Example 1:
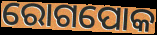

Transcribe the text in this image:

ରୋଗପୋକ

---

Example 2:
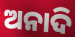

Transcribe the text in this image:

ଅନାଦି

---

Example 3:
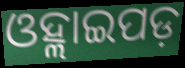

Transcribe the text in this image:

ଓହ୍ଲାଇପଡ଼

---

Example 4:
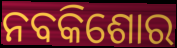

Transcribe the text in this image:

ନବକିଶୋର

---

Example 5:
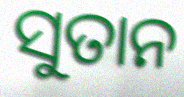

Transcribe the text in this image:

ସୁତାନ